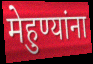
मेहुण्यांना